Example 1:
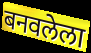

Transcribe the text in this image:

बनवलेला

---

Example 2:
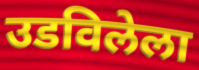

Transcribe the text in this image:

उडविलेला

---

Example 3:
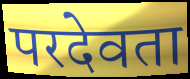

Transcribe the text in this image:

परदेवता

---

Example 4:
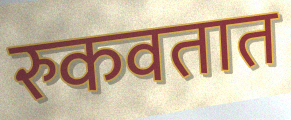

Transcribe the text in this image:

रुकवतात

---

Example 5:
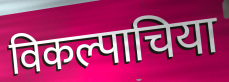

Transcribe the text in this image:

विकल्पाचिया